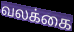
வலக்கை